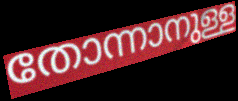
തോന്നാനുള്ള